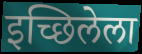
इच्छिलेला